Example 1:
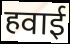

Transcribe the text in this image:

हवाई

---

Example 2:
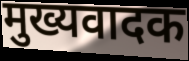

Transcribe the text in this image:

मुख्यवादक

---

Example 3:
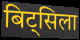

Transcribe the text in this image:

बिट्सिला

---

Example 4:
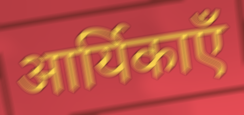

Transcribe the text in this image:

आर्यिकाएँ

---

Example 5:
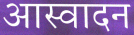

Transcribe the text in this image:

आस्वादन